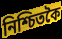
নিশ্চিতকৈ